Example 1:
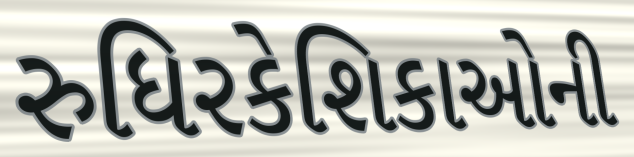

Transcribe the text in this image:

રુધિરકેશિકાઓની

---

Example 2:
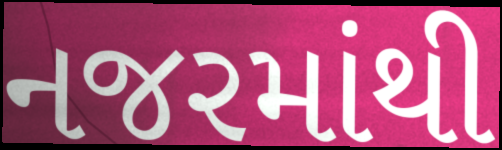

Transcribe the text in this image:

નજરમાંથી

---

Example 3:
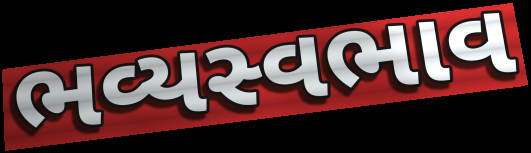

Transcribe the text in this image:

ભવ્યસ્વભાવ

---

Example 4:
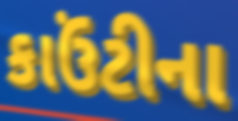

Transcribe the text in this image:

કાઉંટીના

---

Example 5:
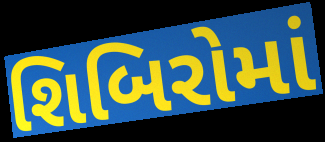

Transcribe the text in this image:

શિબિરોમાં